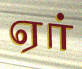
ஏர்